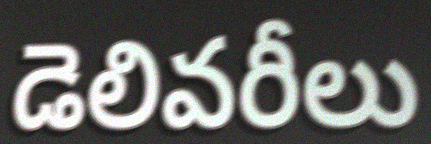
డెలివరీలు